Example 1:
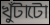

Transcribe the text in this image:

খুঁটাটো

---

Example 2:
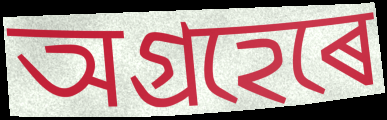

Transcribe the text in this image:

অগ্ৰহেৰে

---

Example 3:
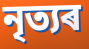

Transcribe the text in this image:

নৃত্যৰ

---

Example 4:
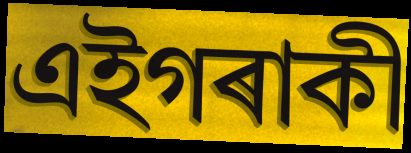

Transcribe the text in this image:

এইগৰাকী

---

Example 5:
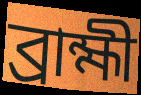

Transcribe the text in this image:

ব্ৰাহ্মী